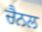
ਚੈਨਲ